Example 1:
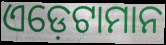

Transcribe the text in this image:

ଏଡ଼େଟାମାନ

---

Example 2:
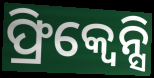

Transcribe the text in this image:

ଫ୍ରିକ୍ୱେନ୍ସି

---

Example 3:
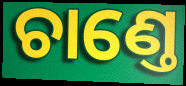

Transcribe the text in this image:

ଚାଣ୍ତେ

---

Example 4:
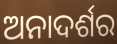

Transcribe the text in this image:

ଅନାଦର୍ଶର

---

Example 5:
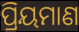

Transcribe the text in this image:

ପ୍ରିୟମାଣ